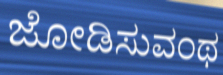
ಜೋಡಿಸುವಂಥ